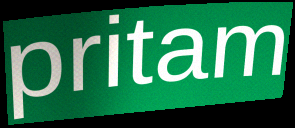
pritam